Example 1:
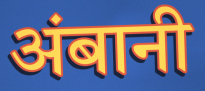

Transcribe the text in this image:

अंबानी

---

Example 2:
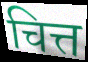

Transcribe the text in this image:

चित्त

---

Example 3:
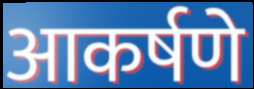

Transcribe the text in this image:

आकर्षणे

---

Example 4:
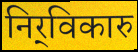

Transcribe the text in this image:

निर्विकारु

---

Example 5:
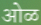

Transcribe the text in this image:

ओळ